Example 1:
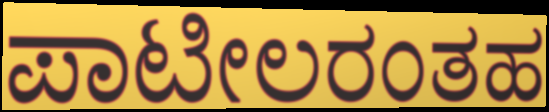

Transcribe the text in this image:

ಪಾಟೀಲರಂತಹ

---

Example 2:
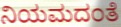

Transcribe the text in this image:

ನಿಯಮದಂತೆ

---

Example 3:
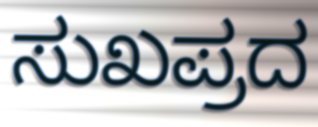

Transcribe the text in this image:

ಸುಖಪ್ರದ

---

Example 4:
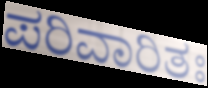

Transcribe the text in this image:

ಪರಿವಾರಿತಃ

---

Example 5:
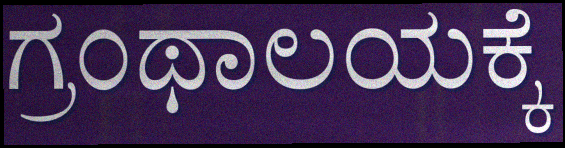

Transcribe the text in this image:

ಗ್ರಂಥಾಲಯಕ್ಕೆ